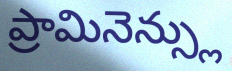
ప్రామినెన్స్లు